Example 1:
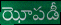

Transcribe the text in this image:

ఝోపడీ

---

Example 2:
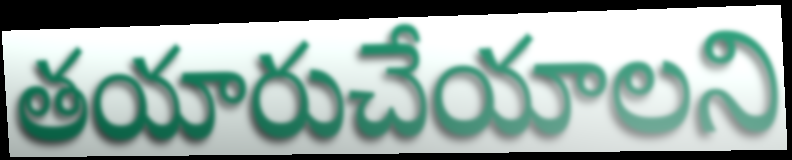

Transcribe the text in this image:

తయారుచేయాలని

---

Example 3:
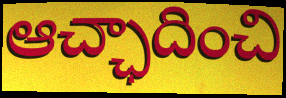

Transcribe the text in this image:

ఆచ్ఛాదించి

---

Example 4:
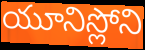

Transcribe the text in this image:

యూనిస్లోని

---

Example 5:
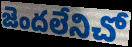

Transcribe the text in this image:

జెందలేనిచో